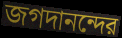
জগদানন্দের